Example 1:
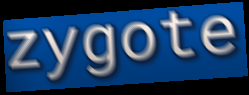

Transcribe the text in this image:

zygote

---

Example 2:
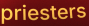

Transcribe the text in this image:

priesters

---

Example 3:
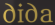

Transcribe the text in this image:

dida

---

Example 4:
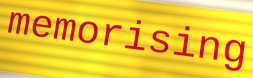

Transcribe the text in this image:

memorising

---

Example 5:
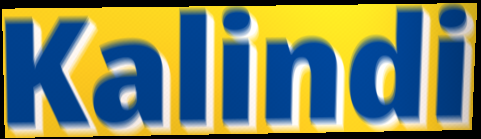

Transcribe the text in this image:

Kalindi